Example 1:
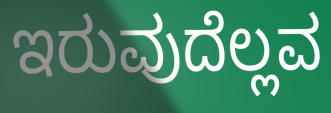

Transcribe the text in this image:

ಇರುವುದೆಲ್ಲವ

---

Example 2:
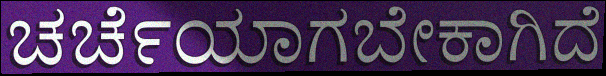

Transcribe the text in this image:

ಚರ್ಚೆಯಾಗಬೇಕಾಗಿದೆ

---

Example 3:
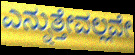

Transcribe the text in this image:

ಎನ್ನುತ್ತೇವಲ್ಲವೇ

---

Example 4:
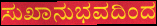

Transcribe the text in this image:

ಸುಖಾನುಭವದಿಂದ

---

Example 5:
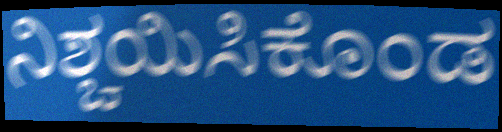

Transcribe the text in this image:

ನಿಶ್ಚಯಿಸಿಕೊಂಡ